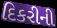
દિકરીની